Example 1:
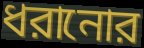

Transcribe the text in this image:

ধরানোর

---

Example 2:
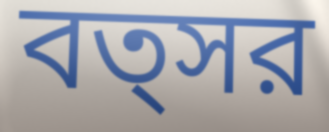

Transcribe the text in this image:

বত্সর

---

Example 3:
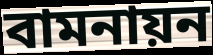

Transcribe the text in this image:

বামনায়ন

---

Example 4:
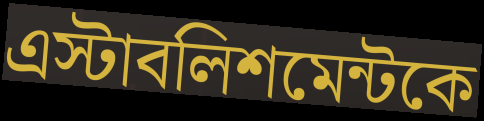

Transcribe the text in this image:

এস্টাবলিশমেন্টকে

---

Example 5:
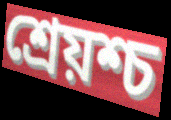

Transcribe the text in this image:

শ্রেয়শ্চ